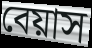
বেয়াস